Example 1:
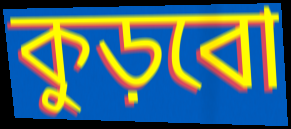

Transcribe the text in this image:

কুড়বো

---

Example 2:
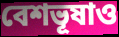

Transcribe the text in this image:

বেশভূষাও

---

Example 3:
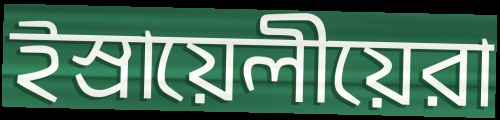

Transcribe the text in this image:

ইস্রায়েলীয়েরা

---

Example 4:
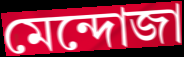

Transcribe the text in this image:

মেন্দোজা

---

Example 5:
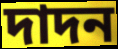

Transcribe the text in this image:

দাদন